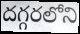
దగ్గరలోని